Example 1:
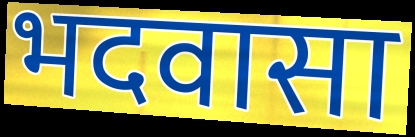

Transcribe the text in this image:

भदवासा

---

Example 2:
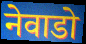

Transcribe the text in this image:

नेवाडो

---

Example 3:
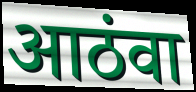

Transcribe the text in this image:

आठंवा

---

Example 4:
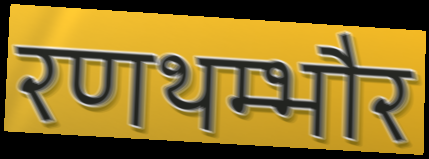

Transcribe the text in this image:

रणथम्भौर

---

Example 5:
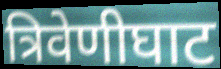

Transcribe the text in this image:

त्रिवेणीघाट